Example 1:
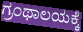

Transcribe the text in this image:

ಗ್ರಂಥಾಲಯಕ್ಕೆ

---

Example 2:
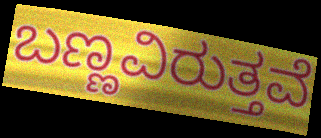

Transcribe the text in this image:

ಬಣ್ಣವಿರುತ್ತವೆ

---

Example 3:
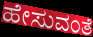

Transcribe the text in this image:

ಹೇಸುವಂತೆ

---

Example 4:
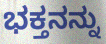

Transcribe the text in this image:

ಭಕ್ತನನ್ನು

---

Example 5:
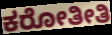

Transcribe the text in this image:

ಕರೋತೀತಿ